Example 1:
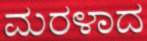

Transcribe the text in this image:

ಮರಳಾದ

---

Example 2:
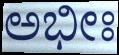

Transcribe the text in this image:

ಅಭೀಃ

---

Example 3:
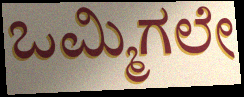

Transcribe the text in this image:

ಒಮ್ಮಿಗಲೇ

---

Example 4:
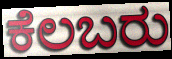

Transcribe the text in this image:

ಕೆಲಬರು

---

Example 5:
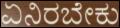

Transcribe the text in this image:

ಏನಿರಬೇಕು